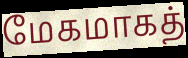
மேகமாகத்